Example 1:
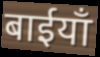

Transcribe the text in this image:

बाईयाँ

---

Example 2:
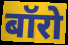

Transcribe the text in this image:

बॉरो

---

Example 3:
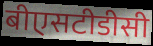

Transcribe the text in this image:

बीएसटीडीसी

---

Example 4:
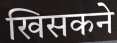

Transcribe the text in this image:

खिसकने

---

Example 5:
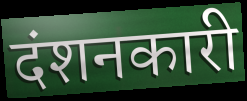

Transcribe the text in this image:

दंशनकारी